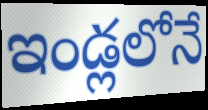
ఇండ్లలోనే